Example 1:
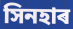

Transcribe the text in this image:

সিনহাৰ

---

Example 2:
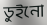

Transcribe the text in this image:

ডুইনো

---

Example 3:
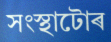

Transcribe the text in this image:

সংস্থাটোৰ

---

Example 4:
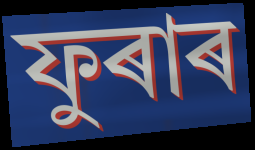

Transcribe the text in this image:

ফুৰাৰ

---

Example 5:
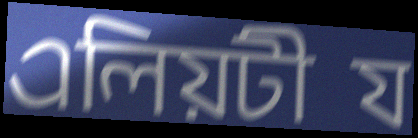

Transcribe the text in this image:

এলিয়টীয